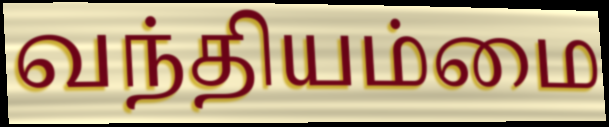
வந்தியம்மை